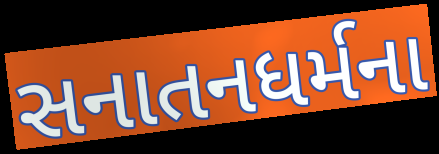
સનાતનધર્મના